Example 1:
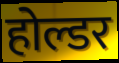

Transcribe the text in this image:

होल्डर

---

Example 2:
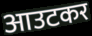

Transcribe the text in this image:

आउटकर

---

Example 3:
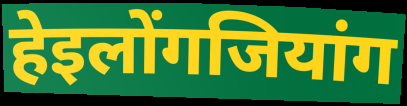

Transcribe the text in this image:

हेइलोंगजियांग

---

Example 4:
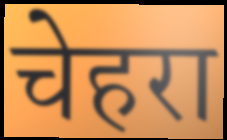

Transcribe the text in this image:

चेहरा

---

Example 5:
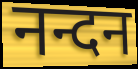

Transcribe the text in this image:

नन्दन